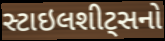
સ્ટાઇલશીટ્સનો